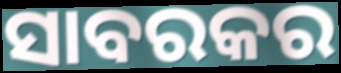
ସାବରକର